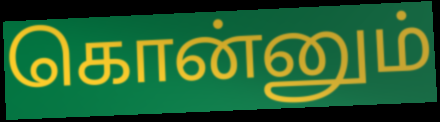
கொன்னும்